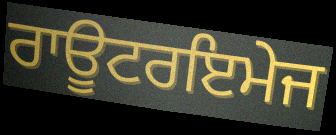
ਰਾਊਟਰਇਮੇਜ